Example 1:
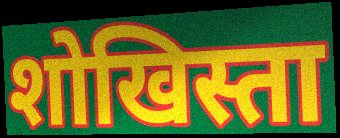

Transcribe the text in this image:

शोखिस्ता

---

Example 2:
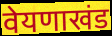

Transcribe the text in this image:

वेयणाखंड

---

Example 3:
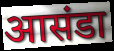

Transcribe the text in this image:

आसंडा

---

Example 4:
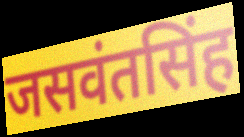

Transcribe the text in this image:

जसवंतसिंह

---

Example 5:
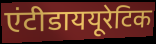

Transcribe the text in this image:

एंटीडाययूरेटिक